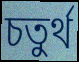
চতুৰ্থ